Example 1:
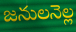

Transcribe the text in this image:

జనులనెల్ల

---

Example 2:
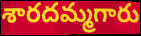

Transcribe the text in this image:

శారదమ్మగారు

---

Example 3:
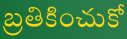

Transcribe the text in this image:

బ్రతికించుకో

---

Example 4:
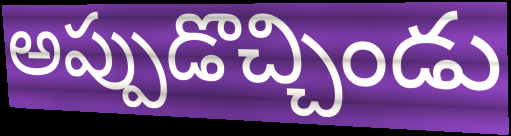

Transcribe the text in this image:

అప్పుడొచ్చిండు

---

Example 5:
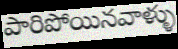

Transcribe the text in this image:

పారిపోయినవాళ్ళు